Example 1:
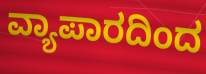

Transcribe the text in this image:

ವ್ಯಾಪಾರದಿಂದ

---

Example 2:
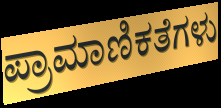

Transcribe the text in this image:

ಪ್ರಾಮಾಣಿಕತೆಗಳು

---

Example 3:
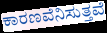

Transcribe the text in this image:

ಕಾರಣವೆನಿಸುತ್ತವೆ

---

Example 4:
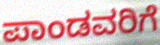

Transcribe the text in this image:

ಪಾಂಡವರಿಗೆ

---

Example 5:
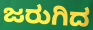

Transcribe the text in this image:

ಜರುಗಿದ